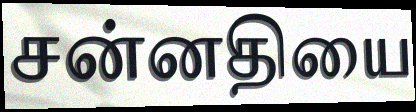
சன்னதியை